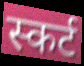
स्कर्ट